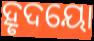
ହୃଦୟୋ